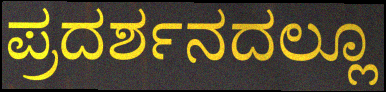
ಪ್ರದರ್ಶನದಲ್ಲೂ